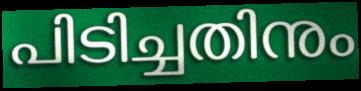
പിടിച്ചതിനും